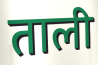
ताली